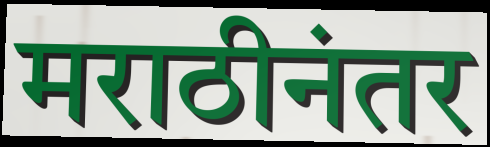
मराठीनंतर